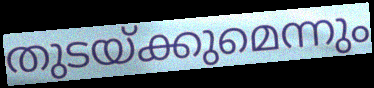
തുടയ്ക്കുമെന്നും